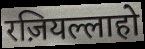
रज़ियल्लाहो